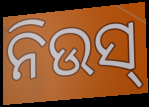
ନିଉସ୍